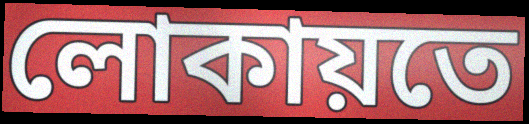
লোকায়তে